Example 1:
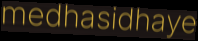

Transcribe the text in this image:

medhasidhaye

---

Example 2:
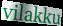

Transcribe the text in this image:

vilakku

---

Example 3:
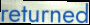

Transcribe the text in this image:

returned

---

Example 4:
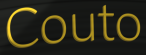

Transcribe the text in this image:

Couto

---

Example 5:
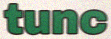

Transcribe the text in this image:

tunc